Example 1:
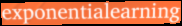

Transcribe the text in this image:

exponentialearning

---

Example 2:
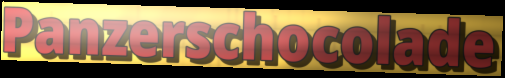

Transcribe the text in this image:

Panzerschocolade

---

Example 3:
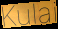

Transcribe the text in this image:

Kulai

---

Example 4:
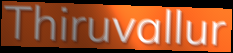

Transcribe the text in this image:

Thiruvallur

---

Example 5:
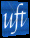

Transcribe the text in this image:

uft